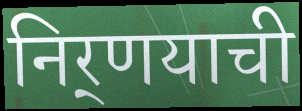
निर्णयाची